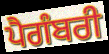
ਪੈਗੰਬਰੀ